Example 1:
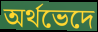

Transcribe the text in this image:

অর্থভেদে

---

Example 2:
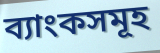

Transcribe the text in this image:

ব্যাংকসমূহ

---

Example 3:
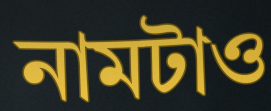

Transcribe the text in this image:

নামটাও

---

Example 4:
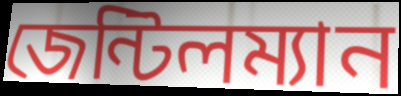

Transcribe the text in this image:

জেন্টিলম্যান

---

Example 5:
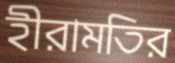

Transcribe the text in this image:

হীরামতির